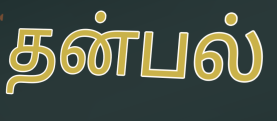
தன்பல்